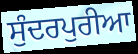
ਸੁੰਦਰਪੁਰੀਆ